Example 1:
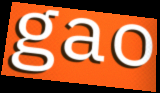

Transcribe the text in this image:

gao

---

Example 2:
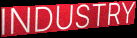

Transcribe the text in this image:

INDUSTRY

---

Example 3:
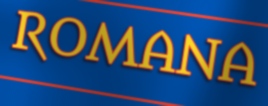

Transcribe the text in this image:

ROMANA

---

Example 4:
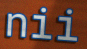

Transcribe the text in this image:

nii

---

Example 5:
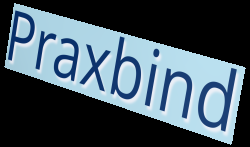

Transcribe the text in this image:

Praxbind